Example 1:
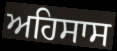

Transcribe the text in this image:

ਅਹਿਸਾਸ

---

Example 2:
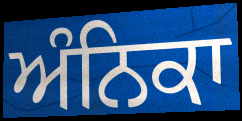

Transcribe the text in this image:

ਅੰਨਿਕਾ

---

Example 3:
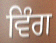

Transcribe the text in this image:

ਵਿੰਗ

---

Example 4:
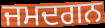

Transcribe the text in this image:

ਜਮਦਗਨ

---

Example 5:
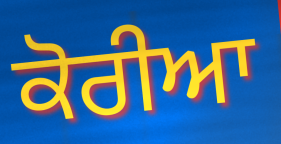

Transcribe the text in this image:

ਕੋਰੀਆ